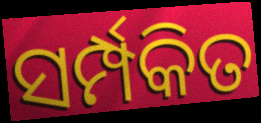
ସର୍ମ୍ପକିତ